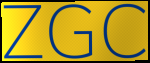
ZGC